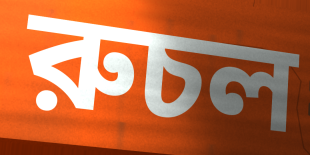
রুচল